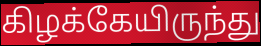
கிழக்கேயிருந்து